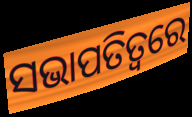
ସଭାପତିତ୍ଵରେ